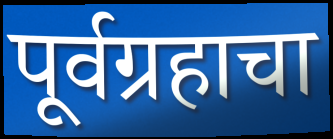
पूर्वग्रहाचा